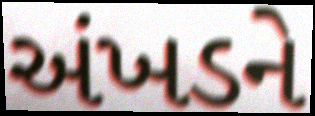
અંખડને